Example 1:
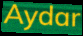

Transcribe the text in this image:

Aydar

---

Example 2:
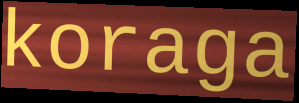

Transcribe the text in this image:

koraga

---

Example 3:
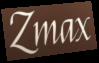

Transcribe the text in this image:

Zmax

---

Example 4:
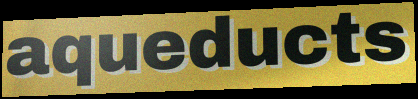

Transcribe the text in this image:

aqueducts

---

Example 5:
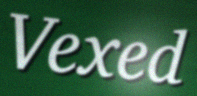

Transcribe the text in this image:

Vexed